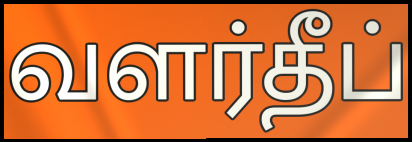
வளர்தீப்